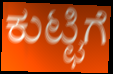
ಕುಟ್ಟಿಗೆ